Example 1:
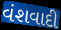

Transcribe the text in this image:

વંશવાદી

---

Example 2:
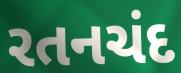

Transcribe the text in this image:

રતનચંદ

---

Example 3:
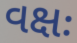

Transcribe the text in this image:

વક્ષઃ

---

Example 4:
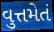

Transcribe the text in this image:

વુત્તમેતં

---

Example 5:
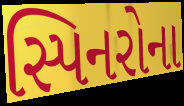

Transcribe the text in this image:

સ્પિનરોના